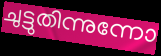
ചുട്ടുതിന്നുന്നോ